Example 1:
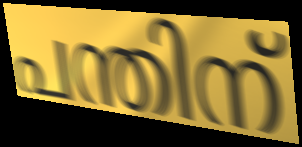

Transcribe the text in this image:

പന്തിന്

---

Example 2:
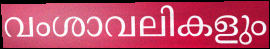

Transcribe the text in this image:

വംശാവലികളും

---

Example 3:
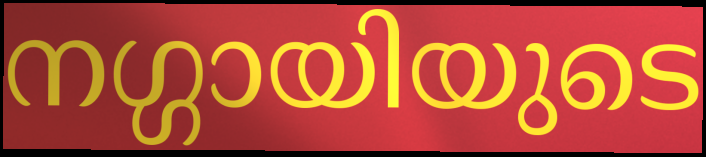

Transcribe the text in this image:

നഗ്ഗായിയുടെ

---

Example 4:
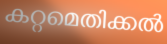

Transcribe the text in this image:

കറ്റമെതിക്കൽ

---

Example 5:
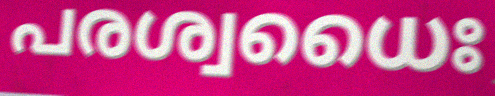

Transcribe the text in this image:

പരശ്വധൈഃ